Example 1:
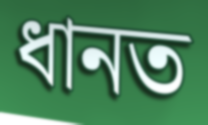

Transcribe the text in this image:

ধানত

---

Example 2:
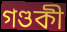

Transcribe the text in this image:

গণ্ডকী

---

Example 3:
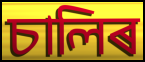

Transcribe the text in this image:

চালিৰ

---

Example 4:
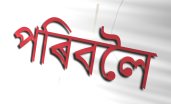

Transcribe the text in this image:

পৰিবলৈ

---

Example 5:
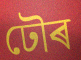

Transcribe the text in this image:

ঢৌৰ